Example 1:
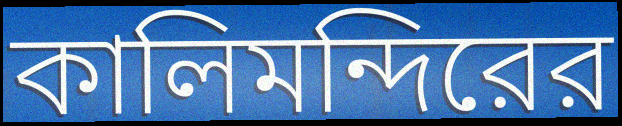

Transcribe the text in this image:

কালিমন্দিরের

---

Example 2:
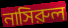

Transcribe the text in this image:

নাসিরুল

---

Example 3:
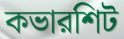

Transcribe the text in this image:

কভারশিট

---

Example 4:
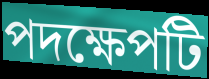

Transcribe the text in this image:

পদক্ষেপটি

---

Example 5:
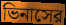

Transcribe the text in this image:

ভিনাসের